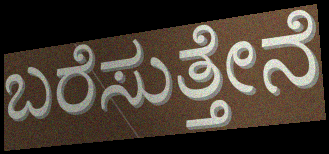
ಬರೆಸುತ್ತೇನೆ